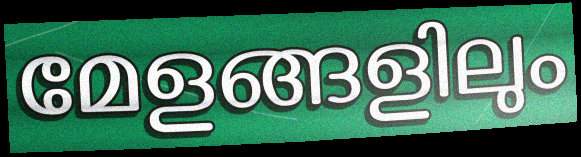
മേളങ്ങളിലും